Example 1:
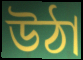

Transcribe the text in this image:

উঠা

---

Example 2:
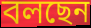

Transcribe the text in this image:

বলছেন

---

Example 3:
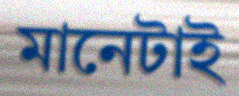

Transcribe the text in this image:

মানেটাই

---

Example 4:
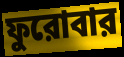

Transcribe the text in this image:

ফুরোবার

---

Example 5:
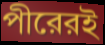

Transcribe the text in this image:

পীরেরই